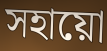
সহায়ো